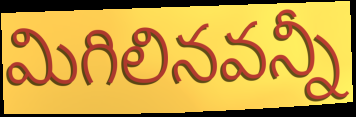
మిగిలినవన్నీ